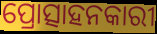
ପ୍ରୋତ୍ସାହନକାରୀ